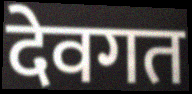
देवगत